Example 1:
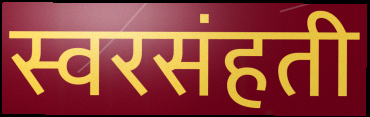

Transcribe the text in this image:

स्वरसंहती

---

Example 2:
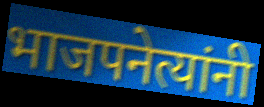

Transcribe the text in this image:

भाजपनेत्यांनी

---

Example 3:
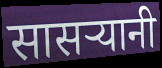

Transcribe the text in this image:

सासऱ्यानी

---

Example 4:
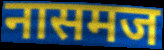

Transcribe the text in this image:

नासमज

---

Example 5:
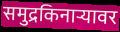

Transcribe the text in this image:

समुद्रकिनाऱ्यावर